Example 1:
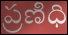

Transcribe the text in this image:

ప్రణిధి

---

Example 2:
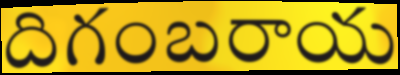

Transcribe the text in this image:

దిగంబరాయ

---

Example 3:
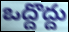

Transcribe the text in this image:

ఒద్దొద్దు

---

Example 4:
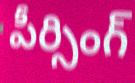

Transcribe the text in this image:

పీర్సింగ్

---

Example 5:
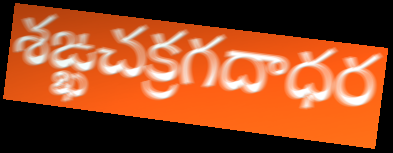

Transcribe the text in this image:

శఙ్ఖచక్రగదాధర